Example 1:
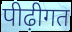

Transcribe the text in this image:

पीढ़ीगत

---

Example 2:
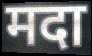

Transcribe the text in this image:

मदा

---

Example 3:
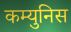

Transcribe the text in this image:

कम्युनिस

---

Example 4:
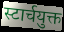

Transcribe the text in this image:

स्टार्चयुक्त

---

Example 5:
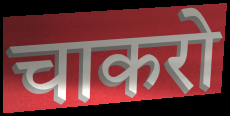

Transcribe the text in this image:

चाकरो